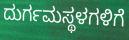
ದುರ್ಗಮಸ್ಥಳಗಳಿಗೆ